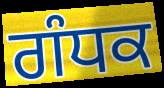
ਗੰਧਕ